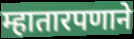
म्हातारपणाने